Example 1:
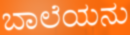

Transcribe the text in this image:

ಬಾಲೆಯನು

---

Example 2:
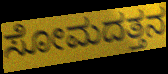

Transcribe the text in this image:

ಸೋಮದತ್ತನ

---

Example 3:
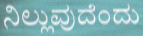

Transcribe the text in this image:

ನಿಲ್ಲುವುದೆಂದು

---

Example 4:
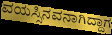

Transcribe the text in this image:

ವಯಸ್ಸಿನವನಾಗಿದ್ದಾಗ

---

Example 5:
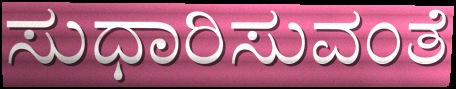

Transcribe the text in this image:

ಸುಧಾರಿಸುವಂತೆ